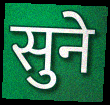
सुने